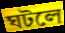
ঘটলে